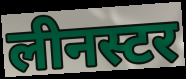
लीनस्टर